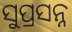
ସୁପ୍ରସନ୍ନ